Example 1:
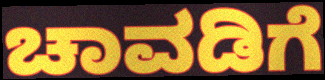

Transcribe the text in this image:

ಚಾವಡಿಗೆ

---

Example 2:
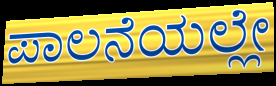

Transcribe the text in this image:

ಪಾಲನೆಯಲ್ಲೇ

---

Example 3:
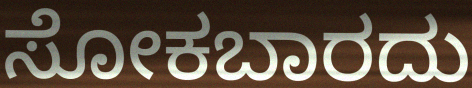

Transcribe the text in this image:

ಸೋಕಬಾರದು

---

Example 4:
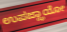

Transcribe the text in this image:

ಉಪಜ್ಝಾಯೋ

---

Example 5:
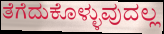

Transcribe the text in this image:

ತೆಗೆದುಕೊಳ್ಳುವುದಲ್ಲ